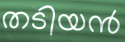
തടിയൻ